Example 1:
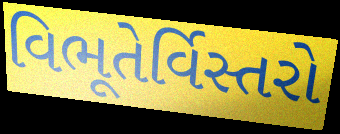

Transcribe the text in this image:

વિભૂતેર્વિસ્તરો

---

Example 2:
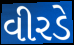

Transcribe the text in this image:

વીરડે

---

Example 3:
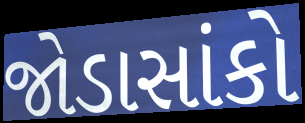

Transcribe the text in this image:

જોડાસાંકો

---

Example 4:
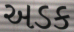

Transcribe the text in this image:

અડક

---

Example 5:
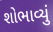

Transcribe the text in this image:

શોભાવ્યું